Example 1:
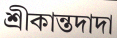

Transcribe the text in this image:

শ্রীকান্তদাদা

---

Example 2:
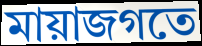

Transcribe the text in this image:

মায়াজগতে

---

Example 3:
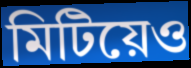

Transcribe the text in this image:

মিটিয়েও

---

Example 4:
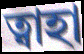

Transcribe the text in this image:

ত্বাহা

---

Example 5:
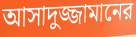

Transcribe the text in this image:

আসাদুজ্জামানের